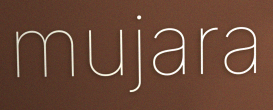
mujara